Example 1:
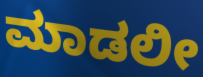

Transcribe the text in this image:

ಮಾಡಲೀ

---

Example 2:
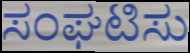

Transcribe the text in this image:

ಸಂಘಟಿಸು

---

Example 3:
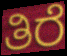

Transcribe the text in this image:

ತಿರೆ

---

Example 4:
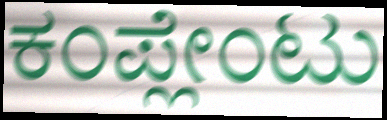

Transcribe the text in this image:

ಕಂಪ್ಲೇಂಟು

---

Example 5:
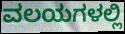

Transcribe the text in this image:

ವಲಯಗಳಲ್ಲಿ